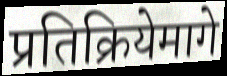
प्रतिक्रियेमागे